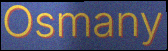
Osmany